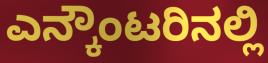
ಎನ್ಕೌಂಟರಿನಲ್ಲಿ